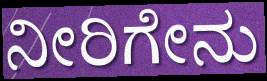
ನೀರಿಗೇನು